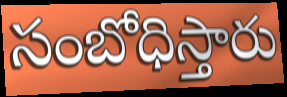
సంబోధిస్తారు